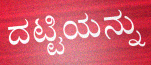
ದಟ್ಟಿಯನ್ನು